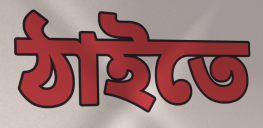
ঠাইতে